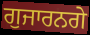
ਗੁਜਾਰਨਗੇ